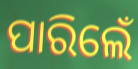
ପାରିଲେଁ